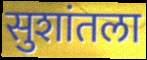
सुशांतला